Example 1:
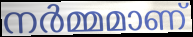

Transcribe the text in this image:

നർമ്മമാണ്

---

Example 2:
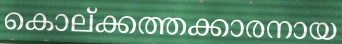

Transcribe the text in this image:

കൊല്ക്കത്തക്കാരനായ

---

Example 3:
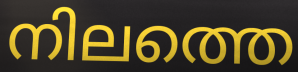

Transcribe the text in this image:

നിലത്തെ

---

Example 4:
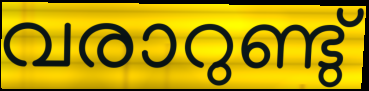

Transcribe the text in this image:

വരാറുണ്ടു്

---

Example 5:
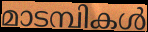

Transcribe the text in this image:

മാടമ്പികൾ